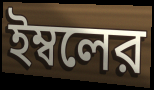
ইম্বলের